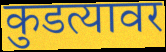
कुडत्यावर